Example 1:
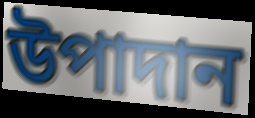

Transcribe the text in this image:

উপাদান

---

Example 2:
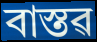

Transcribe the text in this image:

বাস্তৱ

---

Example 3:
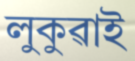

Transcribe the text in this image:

লুকুৱাই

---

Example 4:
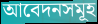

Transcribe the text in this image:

আবেদনসমূহ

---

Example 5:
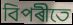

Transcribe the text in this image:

বিপৰীতে